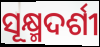
ସୂକ୍ଷ୍ମଦର୍ଶୀ